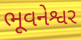
ભૂવનેશ્વર